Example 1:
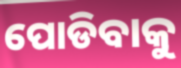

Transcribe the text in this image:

ପୋଡିବାକୁ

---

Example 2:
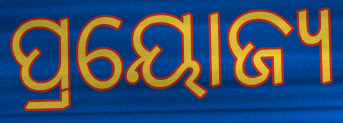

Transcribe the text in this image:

ପ୍ରୟୋଜ୍ୟ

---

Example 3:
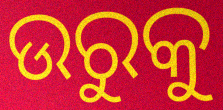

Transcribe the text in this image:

ଉରୁକୁ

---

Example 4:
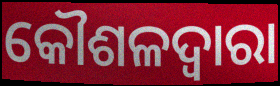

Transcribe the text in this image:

କୌଶଳଦ୍ୱାରା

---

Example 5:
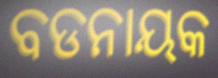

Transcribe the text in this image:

ବଡନାୟକ